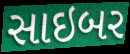
સાઇબર